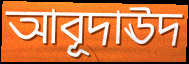
আবূদাঊদ